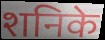
शनिके